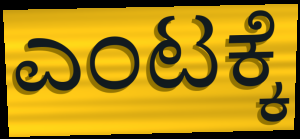
ಎಂಟಕ್ಕೆ